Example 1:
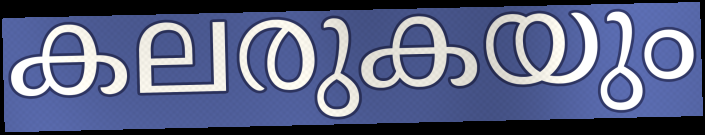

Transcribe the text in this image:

കലരുകയും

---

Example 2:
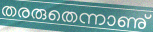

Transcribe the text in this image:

തരരുതെന്നാണു്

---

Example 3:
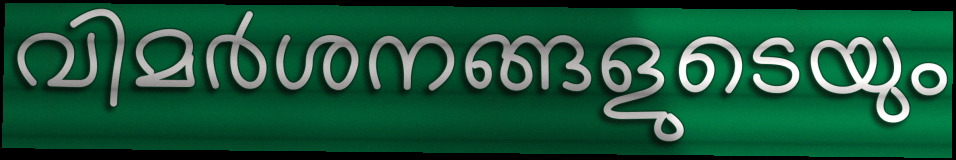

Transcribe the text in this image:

വിമർശനങ്ങളുടെയും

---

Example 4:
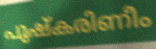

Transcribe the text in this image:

പുഷ്കരിണീം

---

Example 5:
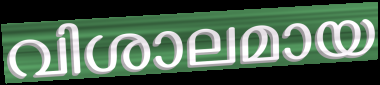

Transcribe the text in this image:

വിശാലമായ